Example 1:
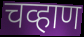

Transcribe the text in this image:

चव्हाण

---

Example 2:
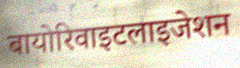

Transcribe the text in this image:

बायोरिवाइटलाइजेशन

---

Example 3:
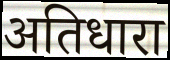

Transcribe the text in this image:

अतिधारा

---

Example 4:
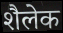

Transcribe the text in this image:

शैलेक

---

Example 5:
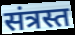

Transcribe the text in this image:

संत्रस्त